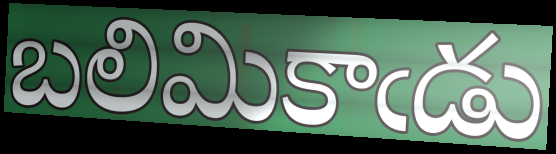
బలిమికాఁడు